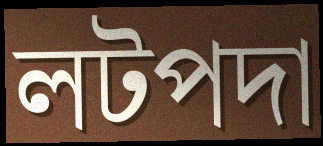
লটপদা